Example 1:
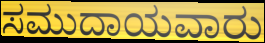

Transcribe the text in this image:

ಸಮುದಾಯವಾರು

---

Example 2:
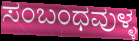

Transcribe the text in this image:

ಸಂಬಂಧವುಳ್ಳ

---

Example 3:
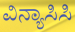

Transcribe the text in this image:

ವಿನ್ಯಾಸಿಸಿ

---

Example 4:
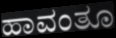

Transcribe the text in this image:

ಹಾವಂತೂ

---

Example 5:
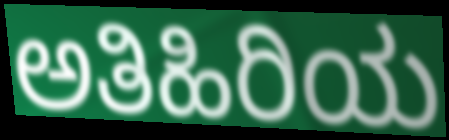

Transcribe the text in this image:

ಅತಿಹಿರಿಯ